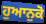
ਹੁਆਨੁਕੋ